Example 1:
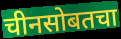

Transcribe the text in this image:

चीनसोबतचा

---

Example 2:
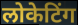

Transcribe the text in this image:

लोकेटिंग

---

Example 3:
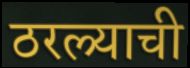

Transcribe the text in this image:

ठरल्याची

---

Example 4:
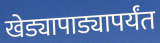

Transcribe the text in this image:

खेड्यापाड्यापर्यंत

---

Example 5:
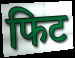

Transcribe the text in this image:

फिट